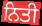
ਨਿਤੀ